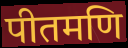
पीतमणि